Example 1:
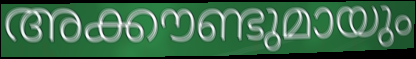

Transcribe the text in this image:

അക്കൗണ്ടുമായും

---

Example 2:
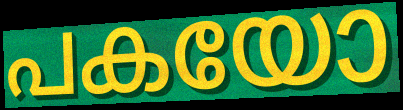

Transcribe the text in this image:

പകയോ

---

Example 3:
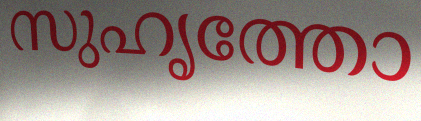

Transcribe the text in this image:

സുഹൃത്തോ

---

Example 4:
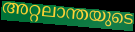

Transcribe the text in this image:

അറ്റലാന്തയുടെ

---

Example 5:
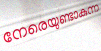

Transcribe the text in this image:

നേരെയുണ്ടാകുന്ന